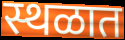
स्थळात